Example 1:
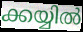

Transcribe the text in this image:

ക്കയ്യിൽ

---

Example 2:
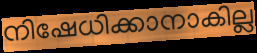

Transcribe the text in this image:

നിഷേധിക്കാനാകില്ല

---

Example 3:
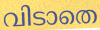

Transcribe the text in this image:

വിടാതെ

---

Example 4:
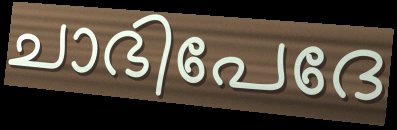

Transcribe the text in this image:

ചാഭിപേദേ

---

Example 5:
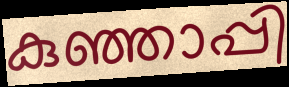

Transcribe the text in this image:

കുഞ്ഞാപ്പി